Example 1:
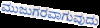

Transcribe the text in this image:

ಮುಜುಗರವಾಗುವುದು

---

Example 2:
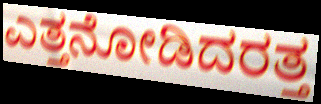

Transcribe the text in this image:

ಎತ್ತನೋಡಿದರತ್ತ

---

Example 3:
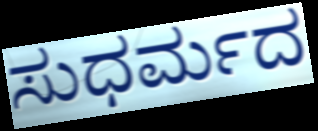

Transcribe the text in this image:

ಸುಧರ್ಮದ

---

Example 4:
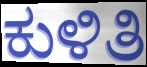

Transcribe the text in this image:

ಕುಳಿತಿ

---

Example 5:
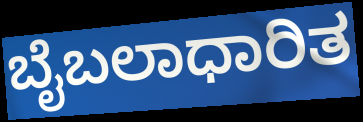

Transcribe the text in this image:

ಬೈಬಲಾಧಾರಿತ